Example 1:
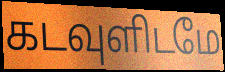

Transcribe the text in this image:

கடவுளிடமே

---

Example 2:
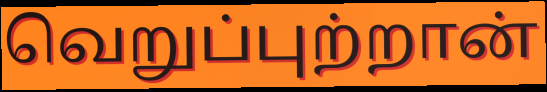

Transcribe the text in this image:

வெறுப்புற்றான்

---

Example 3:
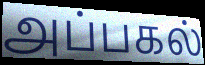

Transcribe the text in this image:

அப்பகல்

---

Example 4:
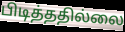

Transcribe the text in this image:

பிடித்ததில்லை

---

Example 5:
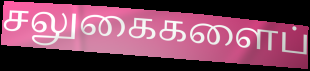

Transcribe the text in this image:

சலுகைகளைப்